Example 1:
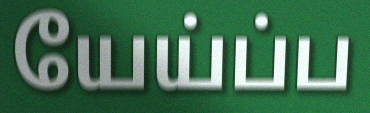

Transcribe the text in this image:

யேய்ப்ப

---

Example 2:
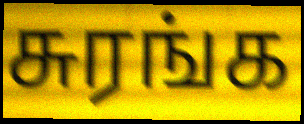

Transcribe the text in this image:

சுரங்க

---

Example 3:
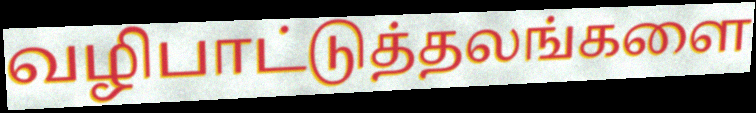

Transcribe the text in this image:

வழிபாட்டுத்தலங்களை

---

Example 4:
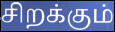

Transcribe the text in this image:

சிறக்கும்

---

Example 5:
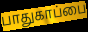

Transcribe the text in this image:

பாதுகாப்பை